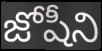
జోషీని